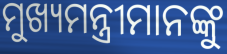
ମୁଖ୍ୟମନ୍ତ୍ରୀମାନଙ୍କୁ